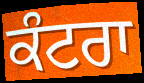
ਕੰਟਰਾ